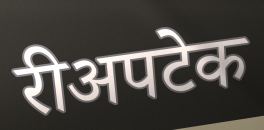
रीअपटेक